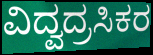
ವಿದ್ವದ್ರಸಿಕರ